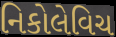
નિકોલેવિચ